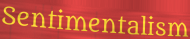
Sentimentalism